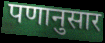
पणानुसार